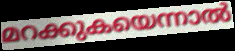
മറക്കുകയെന്നാൽ